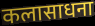
कलासाधना